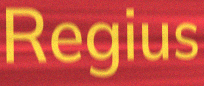
Regius